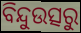
ବିନ୍ଦୁଉତ୍ସରୁ